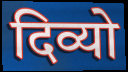
दिव्यो